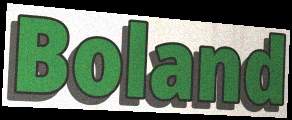
Boland